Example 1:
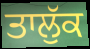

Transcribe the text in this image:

ਤਾਲੁੱਕ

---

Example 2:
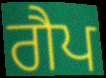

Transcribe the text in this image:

ਗੈਪ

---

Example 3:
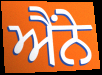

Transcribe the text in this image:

ਐਂਨੇ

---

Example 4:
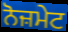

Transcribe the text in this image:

ਨੋਜ਼ਮੇਟ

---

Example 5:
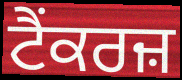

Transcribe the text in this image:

ਟੈਂਕਰਜ਼